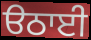
ੳਠਾਈ